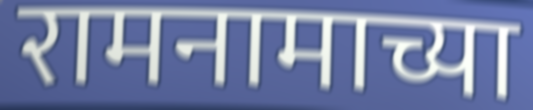
रामनामाच्या